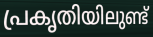
പ്രകൃതിയിലുണ്ട്